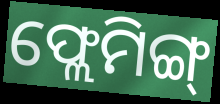
ଫ୍ଲେମିଙ୍ଗ୍